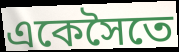
একেসৈতে